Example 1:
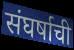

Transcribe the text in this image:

संघर्षाची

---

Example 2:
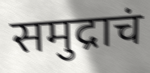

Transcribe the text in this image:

समुद्राचं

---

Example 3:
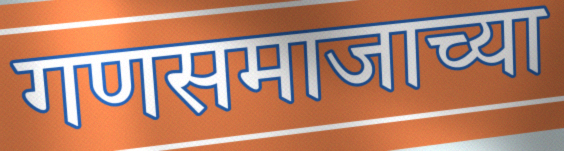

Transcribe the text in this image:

गणसमाजाच्या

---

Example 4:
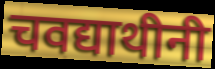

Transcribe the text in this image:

चवद्याथीनी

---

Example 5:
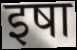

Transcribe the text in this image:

इषा